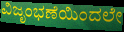
ವಿಜೃಂಭಣೆಯಿಂದಲೇ